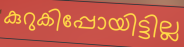
കുറുകിപ്പോയിട്ടില്ല